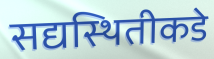
सद्यस्थितीकडे